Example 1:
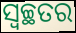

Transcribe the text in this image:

ସ୍ଵଚ୍ଛତର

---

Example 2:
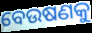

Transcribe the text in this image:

ବେଉଷଣକୁ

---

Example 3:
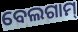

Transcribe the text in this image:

ବେଲଗାମ୍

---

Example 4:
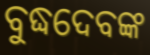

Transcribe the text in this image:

ବୁଦ୍ଧଦେବଙ୍କ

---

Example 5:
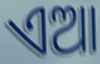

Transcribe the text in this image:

ଏଆ